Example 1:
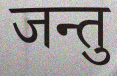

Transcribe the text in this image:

जन्तु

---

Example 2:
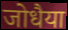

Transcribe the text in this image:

जोधैया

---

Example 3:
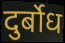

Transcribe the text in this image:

दुर्बोध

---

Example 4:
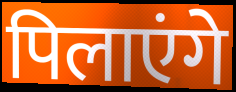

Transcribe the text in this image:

पिलाएंगे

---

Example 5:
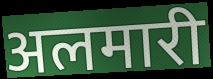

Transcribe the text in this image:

अलमारी